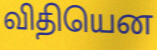
விதியென